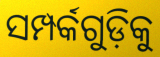
ସମ୍ପର୍କଗୁଡ଼ିକୁ